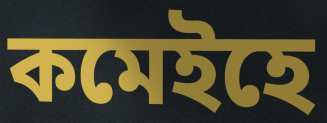
কমেইহে